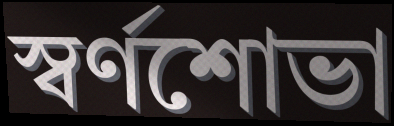
স্বর্ণশোভা